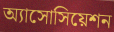
অ্যাসোসিয়েশন